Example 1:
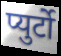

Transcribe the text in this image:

प्युर्टो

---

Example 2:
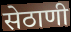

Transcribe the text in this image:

सेठाणी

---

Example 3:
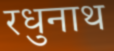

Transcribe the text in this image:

रधुनाथ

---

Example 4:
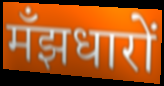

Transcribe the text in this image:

मँझधारों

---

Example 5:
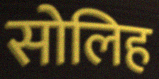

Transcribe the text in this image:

सोलिह